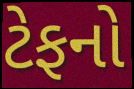
ટેફનો